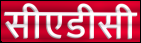
सीएडीसी